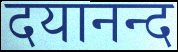
दयानन्द